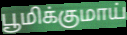
பூமிக்குமாய்